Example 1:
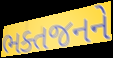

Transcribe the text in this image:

ભક્તજનને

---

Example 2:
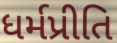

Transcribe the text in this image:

ધર્મપ્રીતિ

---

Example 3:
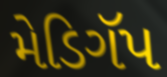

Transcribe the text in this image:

મેડિગૅપ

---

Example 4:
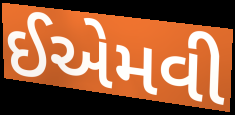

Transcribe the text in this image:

ઈએમવી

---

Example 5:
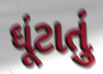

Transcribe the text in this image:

ઘૂંટાતું